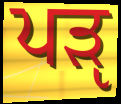
ਪੜੵ